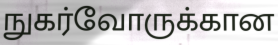
நுகர்வோருக்கான